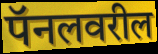
पॅनलवरील